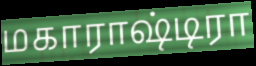
மகாராஷ்டிரா